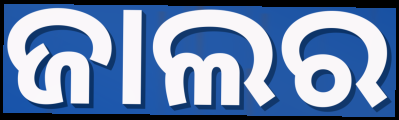
ଜାଲର